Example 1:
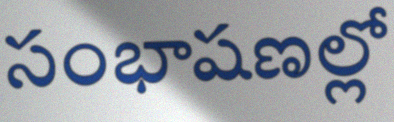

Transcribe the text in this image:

సంభాషణల్లో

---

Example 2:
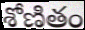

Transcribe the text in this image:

శోణితం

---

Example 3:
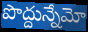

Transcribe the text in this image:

పొద్దున్నేమో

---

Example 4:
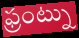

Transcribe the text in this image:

ఫ్రంట్ను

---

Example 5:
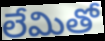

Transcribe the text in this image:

లేమితో